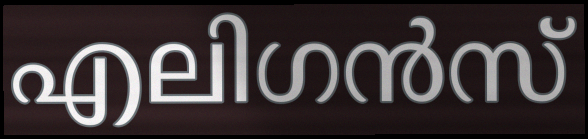
എലിഗൻസ്